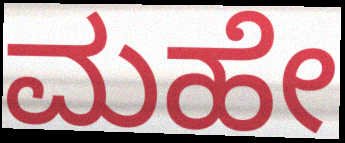
ಮಹೇ